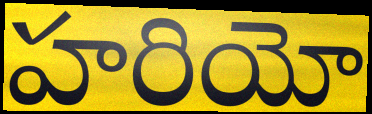
హరియో